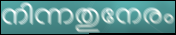
നിന്നതുനേരം